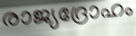
രാജ്യദ്രോഹം